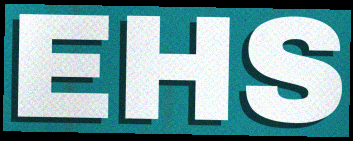
EHS